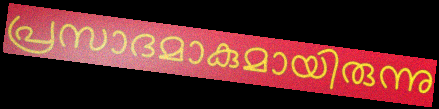
പ്രസാദമാകുമായിരുന്നു